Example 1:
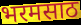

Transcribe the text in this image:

भरमसाठ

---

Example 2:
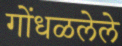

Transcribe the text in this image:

गोंधळलेले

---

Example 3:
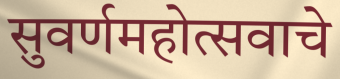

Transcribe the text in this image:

सुवर्णमहोत्सवाचे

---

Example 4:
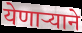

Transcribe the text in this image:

येणाऱ्याने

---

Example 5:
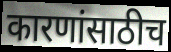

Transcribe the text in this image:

कारणांसाठीच